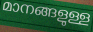
മാനങ്ങളുള്ള